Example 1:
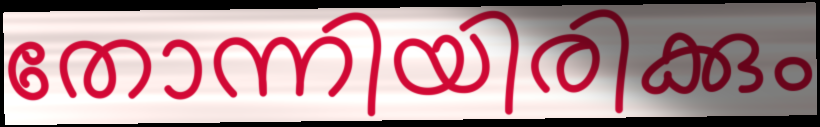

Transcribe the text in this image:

തോന്നിയിരിക്കും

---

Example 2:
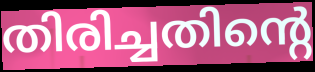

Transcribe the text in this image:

തിരിച്ചതിന്റെ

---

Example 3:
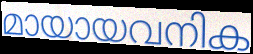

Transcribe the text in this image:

മായായവനിക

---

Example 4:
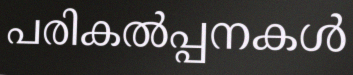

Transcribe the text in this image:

പരികൽപ്പനകൾ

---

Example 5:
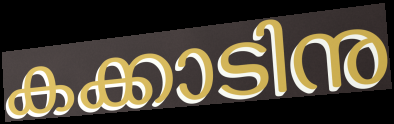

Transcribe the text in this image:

കക്കാടിനു